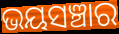
ଭୟସଞ୍ଚାର